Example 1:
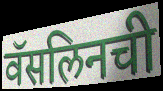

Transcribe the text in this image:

वॅसलिनची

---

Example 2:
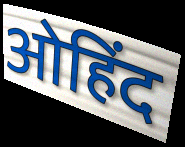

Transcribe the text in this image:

ओहिंद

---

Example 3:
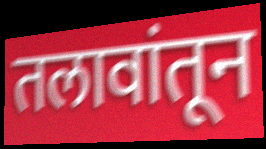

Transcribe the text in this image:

तलावांतून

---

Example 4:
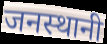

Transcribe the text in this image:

जनस्थानी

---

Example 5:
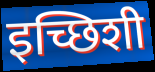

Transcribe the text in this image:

इच्छिशी